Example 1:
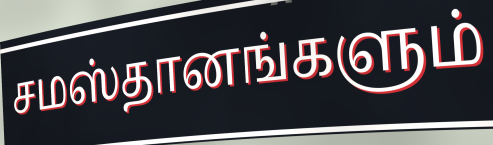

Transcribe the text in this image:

சமஸ்தானங்களும்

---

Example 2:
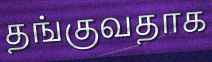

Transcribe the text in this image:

தங்குவதாக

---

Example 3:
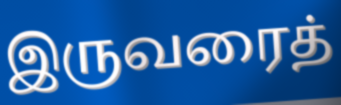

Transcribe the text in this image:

இருவரைத்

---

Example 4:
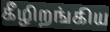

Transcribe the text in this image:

கீழிறங்கிய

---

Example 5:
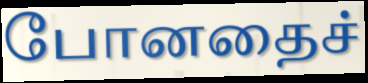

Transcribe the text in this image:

போனதைச்